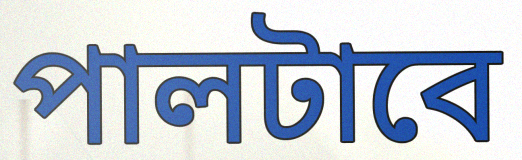
পালটাবে